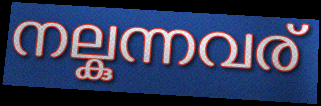
നല്കുന്നവര്